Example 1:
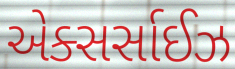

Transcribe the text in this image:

એક્સર્સાઈઝ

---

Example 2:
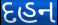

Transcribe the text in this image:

દહન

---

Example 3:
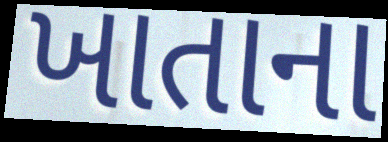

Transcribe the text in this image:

ખાતાના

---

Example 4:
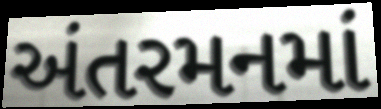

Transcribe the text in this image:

અંતરમનમાં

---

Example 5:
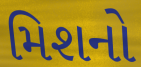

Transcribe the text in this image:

મિશનો